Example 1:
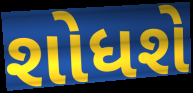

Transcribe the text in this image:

શોધશે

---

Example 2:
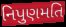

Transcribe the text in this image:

નિપુણમતિ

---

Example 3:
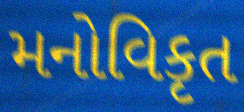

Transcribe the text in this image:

મનોવિકૃત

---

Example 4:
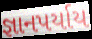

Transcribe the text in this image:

જ્ઞાનપર્યાય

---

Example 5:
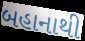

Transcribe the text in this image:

બહાનાથી